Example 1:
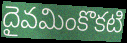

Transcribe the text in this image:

దైవమింకొకటి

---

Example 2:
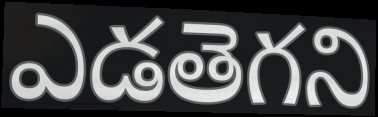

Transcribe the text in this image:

ఎడతెగని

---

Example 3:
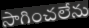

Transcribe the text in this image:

సాగించలేను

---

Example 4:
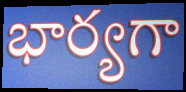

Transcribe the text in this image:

భార్యగా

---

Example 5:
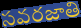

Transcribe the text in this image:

సవరజాతి